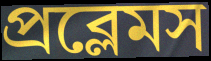
প্রব্লেমস